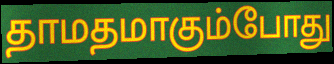
தாமதமாகும்போது